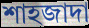
শাহজাদা